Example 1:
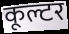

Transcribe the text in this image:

कूल्टर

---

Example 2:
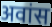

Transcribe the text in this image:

अवांस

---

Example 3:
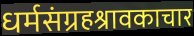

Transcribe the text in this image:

धर्मसंग्रहश्रावकाचार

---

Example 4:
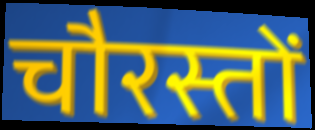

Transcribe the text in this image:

चौरस्तों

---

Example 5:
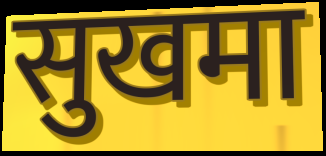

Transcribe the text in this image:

सुखमा